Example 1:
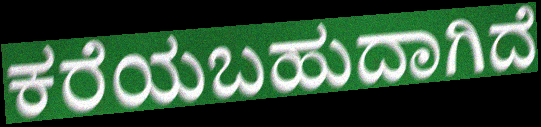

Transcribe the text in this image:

ಕರೆಯಬಹುದಾಗಿದೆ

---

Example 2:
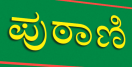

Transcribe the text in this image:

ಪುಠಾಣಿ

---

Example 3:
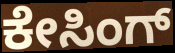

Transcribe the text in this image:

ಕೇಸಿಂಗ್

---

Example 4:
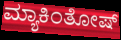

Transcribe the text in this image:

ಮ್ಯಾಕಿಂತೋಷ್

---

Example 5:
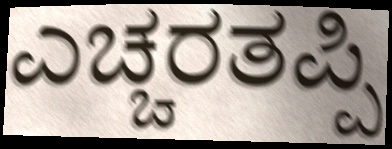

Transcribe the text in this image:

ಎಚ್ಚರತಪ್ಪಿ